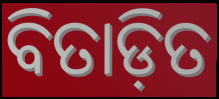
ବିତାଡ଼ିତ